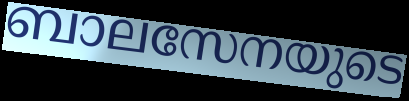
ബാലസേനയുടെ